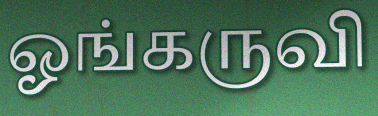
ஓங்கருவி